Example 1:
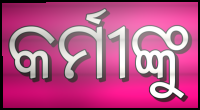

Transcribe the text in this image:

କର୍ମୀଙ୍କୁ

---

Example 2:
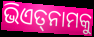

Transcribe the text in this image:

ଭିଏତ୍‌ନାମକୁ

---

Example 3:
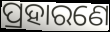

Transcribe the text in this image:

ପ୍ରହାରଣେ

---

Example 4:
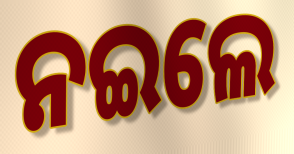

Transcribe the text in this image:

ନଇଲେ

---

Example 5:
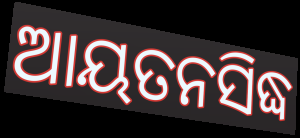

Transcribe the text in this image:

ଆୟତନସିଦ୍ଧ